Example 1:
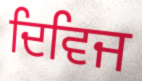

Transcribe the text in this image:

ਦਿਵਿਜ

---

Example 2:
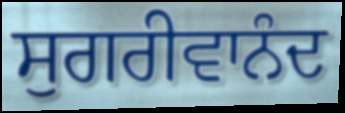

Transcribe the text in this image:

ਸੁਗਰੀਵਾਨੰਦ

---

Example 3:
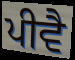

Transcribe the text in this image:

ਪੀਵੈ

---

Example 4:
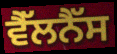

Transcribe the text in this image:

ਵੈੱਲਨੈੱਸ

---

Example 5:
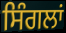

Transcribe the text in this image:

ਸਿੰਗਲਾਂ